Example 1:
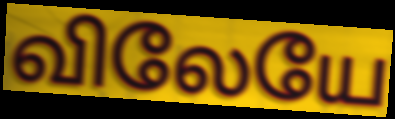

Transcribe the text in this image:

விலேயே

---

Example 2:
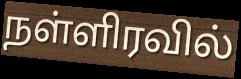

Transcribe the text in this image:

நள்ளிரவில்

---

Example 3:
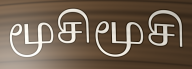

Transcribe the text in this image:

மூசிமூசி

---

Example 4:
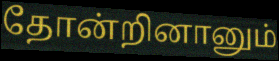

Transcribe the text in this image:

தோன்றினானும்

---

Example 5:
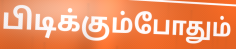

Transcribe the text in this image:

பிடிக்கும்போதும்